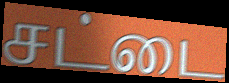
சட்டை